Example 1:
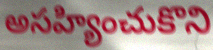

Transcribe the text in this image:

అసహ్యించుకొని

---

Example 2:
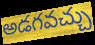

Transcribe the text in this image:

అడగవచ్చు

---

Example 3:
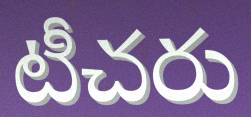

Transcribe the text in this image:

టీచరు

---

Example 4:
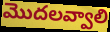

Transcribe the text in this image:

మొదలవ్వాలి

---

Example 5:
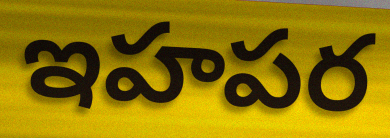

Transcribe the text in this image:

ఇహపర